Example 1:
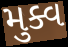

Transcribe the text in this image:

મુક્વ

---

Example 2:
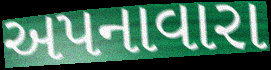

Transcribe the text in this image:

અપનાવારા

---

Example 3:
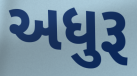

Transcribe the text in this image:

અધુરૂ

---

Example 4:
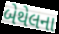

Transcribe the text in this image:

બેથેલના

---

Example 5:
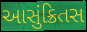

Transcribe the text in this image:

આસુંક્રિતસ